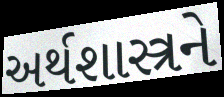
અર્થશાસ્ત્રને